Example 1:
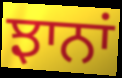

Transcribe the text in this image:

ਝਾਨਾਂ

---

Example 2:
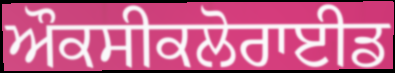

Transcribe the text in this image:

ਔਕਸੀਕਲੋਰਾਈਡ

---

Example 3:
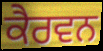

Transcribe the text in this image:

ਕੈਰਵਨ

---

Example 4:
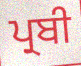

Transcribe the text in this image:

ਪ੍ਰਬੀ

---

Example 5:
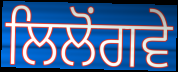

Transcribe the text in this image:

ਲਿਲੋਂਗਵੇ